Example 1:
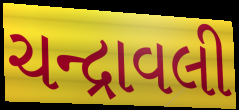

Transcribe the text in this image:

ચન્દ્રાવલી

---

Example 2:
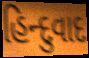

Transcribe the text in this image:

હિન્દુવાદ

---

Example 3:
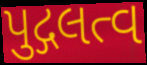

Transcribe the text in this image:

પુદ્ગલત્વ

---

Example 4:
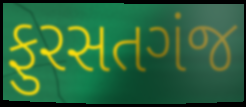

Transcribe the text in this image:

ફુરસતગંજ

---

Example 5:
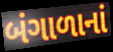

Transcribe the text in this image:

બંગાળાનાં